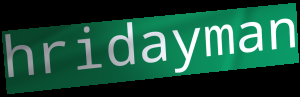
hridayman